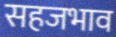
सहजभाव